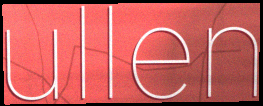
ullen